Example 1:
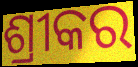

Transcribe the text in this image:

ଶ୍ରୀକର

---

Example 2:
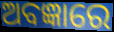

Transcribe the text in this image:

ଅବଜ୍ଞାରେ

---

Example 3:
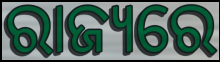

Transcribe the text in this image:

ରାଜ୍ଯରେ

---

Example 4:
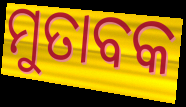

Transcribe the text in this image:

ମୁତାବକ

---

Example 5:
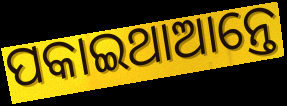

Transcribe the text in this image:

ପକାଇଥାଆନ୍ତେ